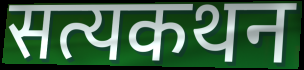
सत्यकथन